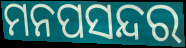
ମନପସନ୍ଦର